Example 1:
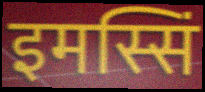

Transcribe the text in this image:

इमस्सिं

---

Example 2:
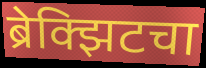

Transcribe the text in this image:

ब्रेक्झिटचा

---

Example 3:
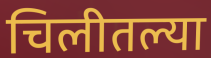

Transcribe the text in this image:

चिलीतल्या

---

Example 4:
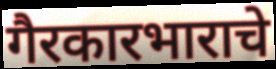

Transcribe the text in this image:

गैरकारभाराचे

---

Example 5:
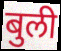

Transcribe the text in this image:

बुली